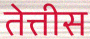
तेत्तीस